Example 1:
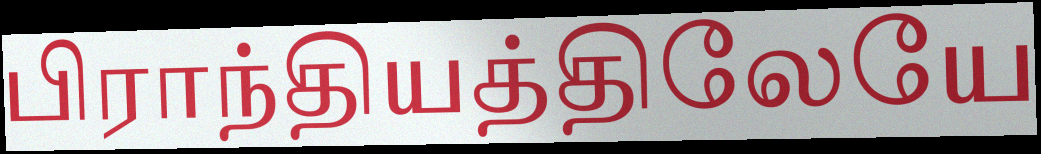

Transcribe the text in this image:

பிராந்தியத்திலேயே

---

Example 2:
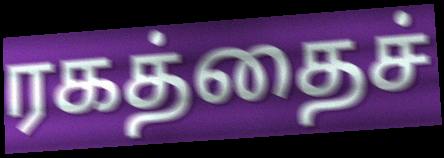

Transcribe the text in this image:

ரகத்தைச்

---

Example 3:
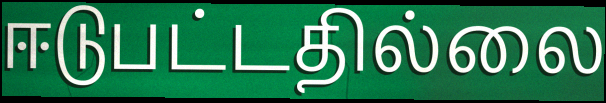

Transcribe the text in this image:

ஈடுபட்டதில்லை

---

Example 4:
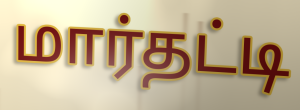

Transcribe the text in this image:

மார்தட்டி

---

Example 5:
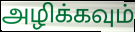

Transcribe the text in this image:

அழிக்கவும்